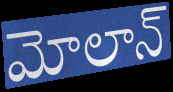
మోలాన్